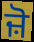
ਜ਼ੋ